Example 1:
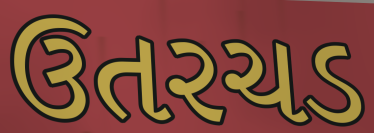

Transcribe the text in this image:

ઉતરચડ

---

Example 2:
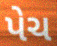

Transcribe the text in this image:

પેચ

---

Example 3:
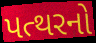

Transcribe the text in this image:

પત્થરનો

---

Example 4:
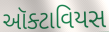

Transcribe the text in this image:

ઑક્ટાવિયસ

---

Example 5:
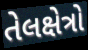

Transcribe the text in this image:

તેલક્ષેત્રો